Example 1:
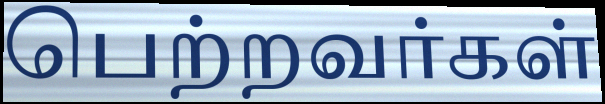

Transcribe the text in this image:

பெற்றவர்கள்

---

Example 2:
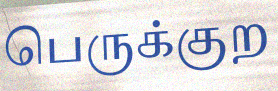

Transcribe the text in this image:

பெருக்குற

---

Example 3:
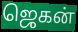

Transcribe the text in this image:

ஜெகன்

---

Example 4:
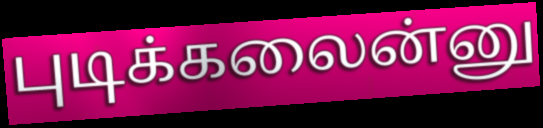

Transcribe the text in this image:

புடிக்கலைன்னு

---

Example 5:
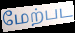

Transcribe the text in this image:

மேற்பட